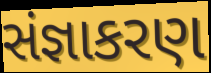
સંજ્ઞાકરણ